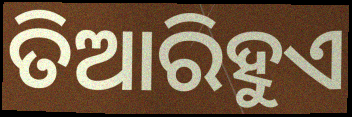
ତିଆରିହୁଏ